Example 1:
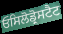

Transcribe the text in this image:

ਓਸਿਲੋਡ੍ਰੋਸਟੈਟ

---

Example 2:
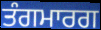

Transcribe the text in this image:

ਤੰਗਮਾਰਗ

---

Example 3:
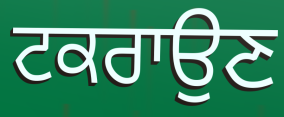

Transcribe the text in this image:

ਟਕਰਾਉਣ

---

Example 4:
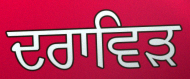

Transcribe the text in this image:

ਦਰਾਵਿੜ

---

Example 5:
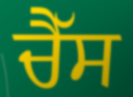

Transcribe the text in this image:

ਚੈੱਸ